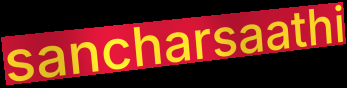
sancharsaathi